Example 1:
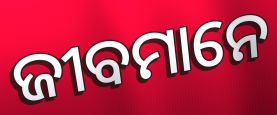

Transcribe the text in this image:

ଜୀବମାନେ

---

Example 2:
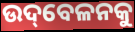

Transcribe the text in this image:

ଉଦ୍‌ବେଳନକୁ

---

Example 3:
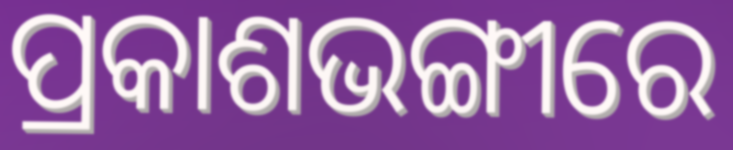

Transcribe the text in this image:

ପ୍ରକାଶଭଙ୍ଗୀରେ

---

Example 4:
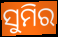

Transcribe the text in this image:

ସୁମିର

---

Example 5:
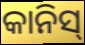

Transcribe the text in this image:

କାନିସ୍